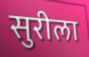
सुरीला